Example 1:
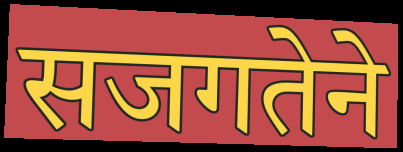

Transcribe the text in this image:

सजगतेने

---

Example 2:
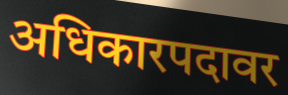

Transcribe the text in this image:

अधिकारपदावर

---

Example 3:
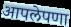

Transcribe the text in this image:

आपलेपणा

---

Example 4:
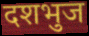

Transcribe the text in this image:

दशभुज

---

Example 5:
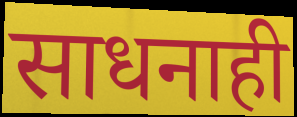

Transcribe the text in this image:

साधनाही